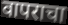
वापराचा